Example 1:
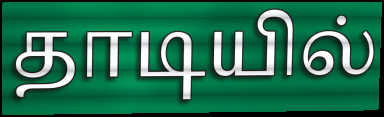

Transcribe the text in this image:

தாடியில்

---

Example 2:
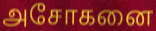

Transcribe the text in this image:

அசோகனை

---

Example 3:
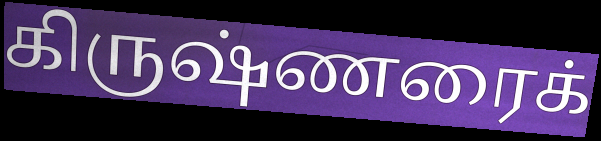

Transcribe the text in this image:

கிருஷ்ணரைக்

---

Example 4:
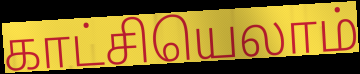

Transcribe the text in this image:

காட்சியெலாம்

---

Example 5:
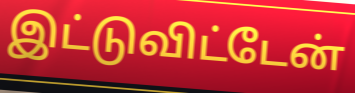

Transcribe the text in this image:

இட்டுவிட்டேன்